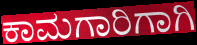
ಕಾಮಗಾರಿಗಾಗಿ